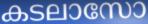
കടലാസോ